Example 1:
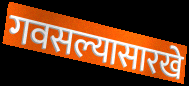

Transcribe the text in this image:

गवसल्यासारखे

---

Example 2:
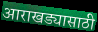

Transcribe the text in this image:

आराखड्यासाठी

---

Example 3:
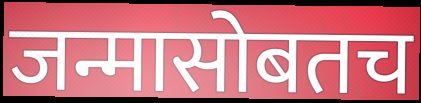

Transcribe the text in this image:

जन्मासोबतच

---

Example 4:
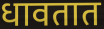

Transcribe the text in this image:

धावतात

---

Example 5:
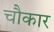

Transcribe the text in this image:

चौकार